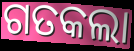
ଗତକଲା